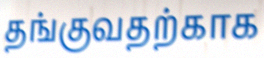
தங்குவதற்காக